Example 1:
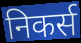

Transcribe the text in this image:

निकर्स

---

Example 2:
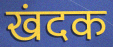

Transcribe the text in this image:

खंदक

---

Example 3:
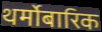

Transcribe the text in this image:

थर्मोबारिक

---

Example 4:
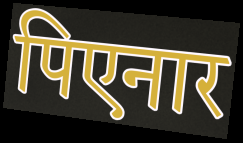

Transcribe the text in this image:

पिएनार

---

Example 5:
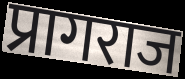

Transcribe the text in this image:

प्रागराज